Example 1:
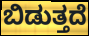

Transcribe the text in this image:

ಬಿಡುತ್ತದೆ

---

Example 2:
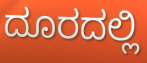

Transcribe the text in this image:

ದೂರದಲ್ಲಿ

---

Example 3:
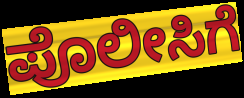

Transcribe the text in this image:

ಪೊಲೀಸಿಗೆ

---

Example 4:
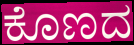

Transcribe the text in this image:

ಕೊಣದ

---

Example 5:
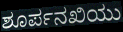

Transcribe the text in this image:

ಶೂರ್ಪನಖಿಯು